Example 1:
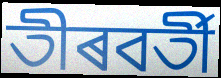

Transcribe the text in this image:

তীৰবৰ্তী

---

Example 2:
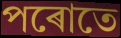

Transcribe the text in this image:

পৰোতে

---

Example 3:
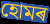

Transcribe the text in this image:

হোমৰ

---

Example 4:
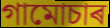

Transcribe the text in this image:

গামোচাৰ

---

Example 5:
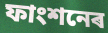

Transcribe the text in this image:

ফাংশনেৰ